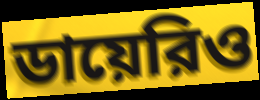
ডায়েরিও